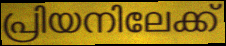
പ്രിയനിലേക്ക്